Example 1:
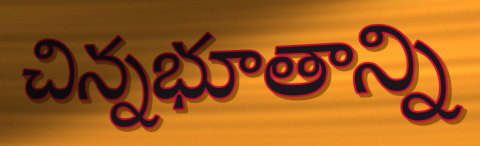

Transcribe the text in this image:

చిన్నభూతాన్ని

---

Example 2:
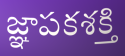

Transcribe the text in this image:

జ్ఞాపకశక్తి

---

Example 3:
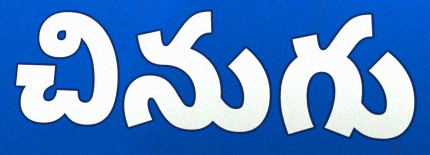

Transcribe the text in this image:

చినుగు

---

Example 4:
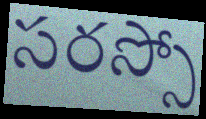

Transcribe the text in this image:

సరస్సో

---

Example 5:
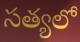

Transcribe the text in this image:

సత్యలో